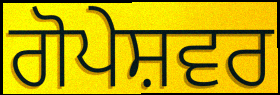
ਗੋਪੇਸ਼ਵਰ